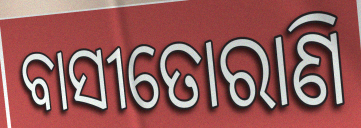
ବାସୀତୋରାଣି